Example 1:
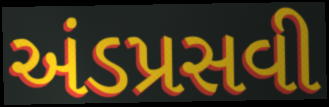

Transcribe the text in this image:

અંડપ્રસવી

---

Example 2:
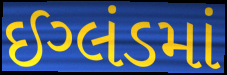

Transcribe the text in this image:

ઈગ્લંડમાં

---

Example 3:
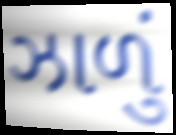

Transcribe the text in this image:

ઝાળું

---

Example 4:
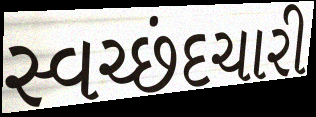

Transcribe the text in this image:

સ્વચ્છંદચારી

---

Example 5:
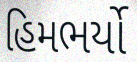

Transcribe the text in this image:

હિમભર્યો